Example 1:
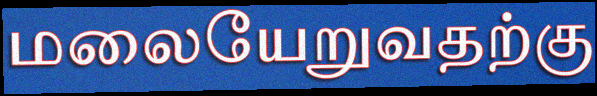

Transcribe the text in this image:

மலையேறுவதற்கு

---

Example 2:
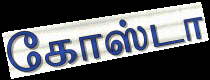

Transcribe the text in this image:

கோஸ்டா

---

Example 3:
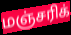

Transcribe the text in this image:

மஞ்சரிக்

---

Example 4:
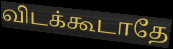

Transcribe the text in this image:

விடக்கூடாதே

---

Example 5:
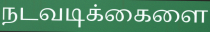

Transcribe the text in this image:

நடவடிக்கைளை